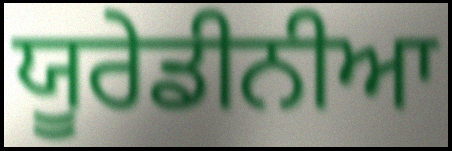
ਯੂਰੇਡੀਨੀਆ